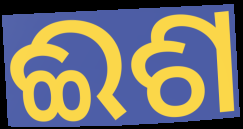
ଈଶ